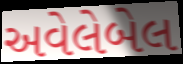
અવેલેબેલ